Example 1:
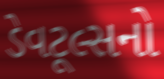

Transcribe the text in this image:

ડેવટૂલ્સનો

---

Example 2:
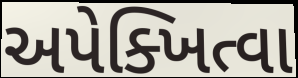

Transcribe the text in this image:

અપેક્ખિત્વા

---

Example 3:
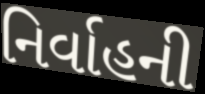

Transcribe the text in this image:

નિર્વાહની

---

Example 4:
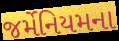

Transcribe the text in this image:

જર્મેનિયમના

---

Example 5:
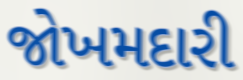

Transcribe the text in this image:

જોખમદારી